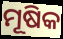
ମୂଷିକ